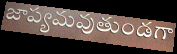
జాప్యమవుతుండగా